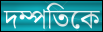
দম্পতিকে